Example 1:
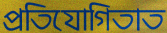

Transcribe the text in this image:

প্ৰতিযোগিতাত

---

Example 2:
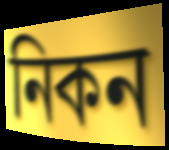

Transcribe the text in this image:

নিকন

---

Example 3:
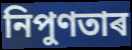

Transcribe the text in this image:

নিপুণতাৰ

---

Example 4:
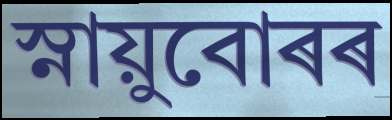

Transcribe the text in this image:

স্নায়ুবোৰৰ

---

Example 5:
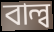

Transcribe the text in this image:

বাল্ব